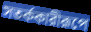
সতর্ককারীরূপে